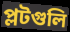
প্লটগুলি